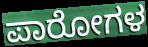
ಪಾರೋಗಳ